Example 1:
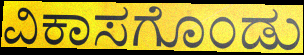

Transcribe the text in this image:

ವಿಕಾಸಗೊಂಡು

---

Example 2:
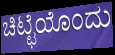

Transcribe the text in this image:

ಚಿಟ್ಟೆಯೊಂದು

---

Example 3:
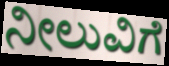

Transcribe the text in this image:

ನೀಲುವಿಗೆ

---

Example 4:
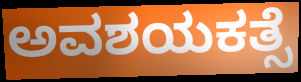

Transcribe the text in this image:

ಅವಶಯಕತ್ಸೆ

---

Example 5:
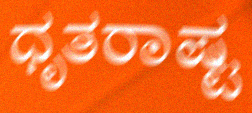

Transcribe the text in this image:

ಧೃತರಾಷ್ಟ